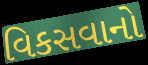
વિકસવાનો